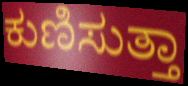
ಕುಣಿಸುತ್ತಾ